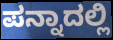
ಪನ್ನಾದಲ್ಲಿ